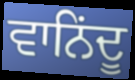
ਵਾਨਿਂਦੂ